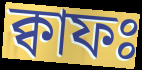
ক্বাফঃ